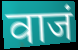
वाजं